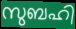
സുബഹി